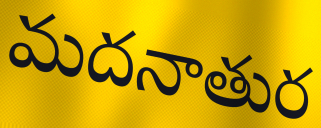
మదనాతుర